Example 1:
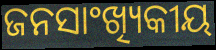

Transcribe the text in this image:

ଜନସାଂଖ୍ୟିକୀୟ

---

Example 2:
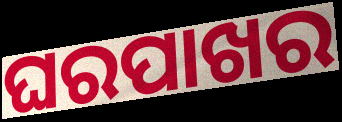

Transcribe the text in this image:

ଘରପାଖର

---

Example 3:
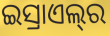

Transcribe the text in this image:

ଇସ୍ରାଏଲ୍‌ର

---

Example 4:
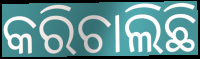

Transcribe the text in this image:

କରିଚାଲିଛି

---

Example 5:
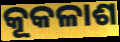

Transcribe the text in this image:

କୂକଳାଶ